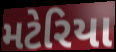
મટેરિયા